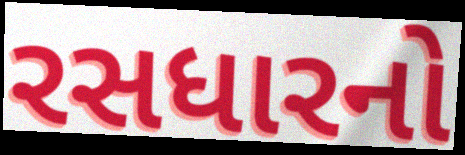
રસધારનો